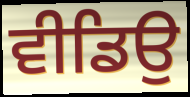
ਵੀਡਿਉ